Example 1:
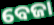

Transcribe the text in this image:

ବେଜା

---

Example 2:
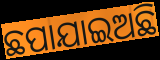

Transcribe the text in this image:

ଛପାଯାଇଅଛି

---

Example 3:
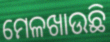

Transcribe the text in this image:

ମେଳଖାଉଛି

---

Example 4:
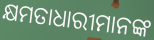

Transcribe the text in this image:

କ୍ଷମତାଧାରୀମାନଙ୍କ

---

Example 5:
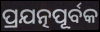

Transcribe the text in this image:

ପ୍ରଯତ୍ନପୂର୍ବକ